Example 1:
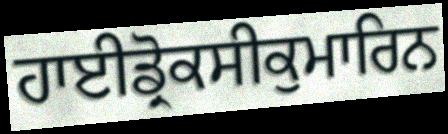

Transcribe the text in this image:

ਹਾਈਡ੍ਰੋਕਸੀਕੁਮਾਰਿਨ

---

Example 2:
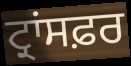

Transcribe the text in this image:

ਟ੍ਰਾਂਸਫ਼ਰ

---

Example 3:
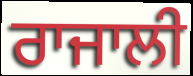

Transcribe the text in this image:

ਰਾਜਾਲੀ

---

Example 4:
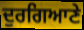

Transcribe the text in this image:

ਦੁਰਗਿਆਣੇ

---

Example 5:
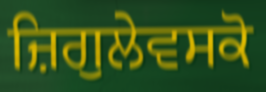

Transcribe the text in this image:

ਜ਼ਿਗੁਲੇਵਸਕੋ